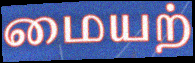
மையற்